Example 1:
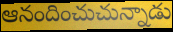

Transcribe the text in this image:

ఆనందించుచున్నాడు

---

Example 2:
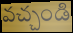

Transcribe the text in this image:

వచ్చండి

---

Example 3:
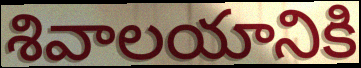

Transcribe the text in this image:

శివాలయానికి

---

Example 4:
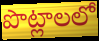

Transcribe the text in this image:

పొట్లాలలో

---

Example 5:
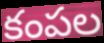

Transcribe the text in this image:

కంపల